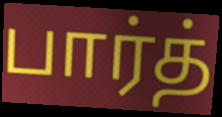
பார்த்